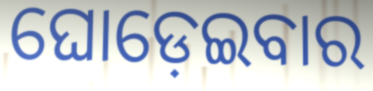
ଘୋଡ଼େଇବାର